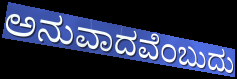
ಅನುವಾದವೆಂಬುದು